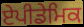
ਏਪੀਡੇਮਿਕ